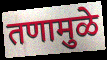
तणामुळे